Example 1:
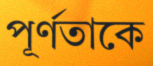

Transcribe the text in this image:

পূর্ণতাকে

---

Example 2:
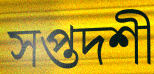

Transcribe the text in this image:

সপ্তদশী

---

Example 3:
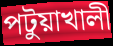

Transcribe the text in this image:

পটুয়াখালী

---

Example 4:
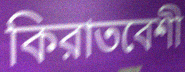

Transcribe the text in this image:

কিরাতবেশী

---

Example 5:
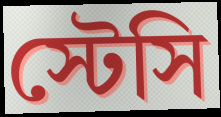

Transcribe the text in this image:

স্টেসি